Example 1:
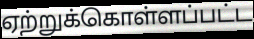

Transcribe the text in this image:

ஏற்றுக்கொள்ளப்பட்ட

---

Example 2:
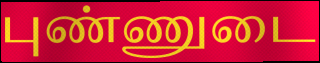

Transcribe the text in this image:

புண்ணுடை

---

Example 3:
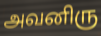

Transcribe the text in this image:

அவனிரு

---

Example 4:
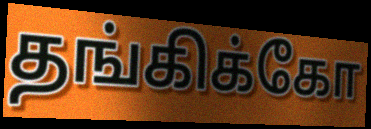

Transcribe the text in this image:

தங்கிக்கோ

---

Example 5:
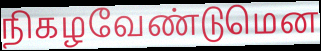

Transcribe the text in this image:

நிகழவேண்டுமென